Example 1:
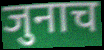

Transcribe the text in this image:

जुनाच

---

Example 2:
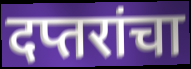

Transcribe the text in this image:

दप्तरांचा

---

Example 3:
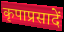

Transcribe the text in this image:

कृपाप्रसादें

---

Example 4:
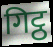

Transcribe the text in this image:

गिट्ठ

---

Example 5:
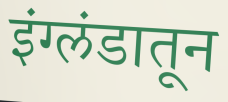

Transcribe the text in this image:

इंग्लंडातून